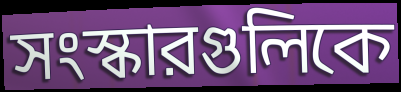
সংস্কারগুলিকে